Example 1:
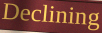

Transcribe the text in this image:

Declining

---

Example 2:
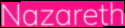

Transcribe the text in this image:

Nazareth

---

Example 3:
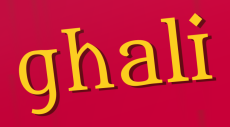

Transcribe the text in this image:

ghali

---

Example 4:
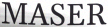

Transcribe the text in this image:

MASER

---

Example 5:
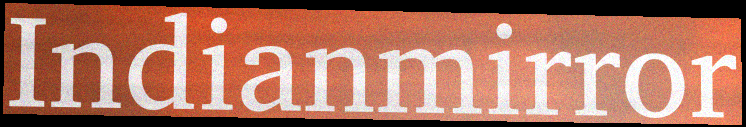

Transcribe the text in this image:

Indianmirror